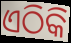
ଏଠିକି